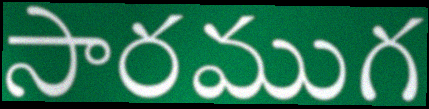
సారముగ